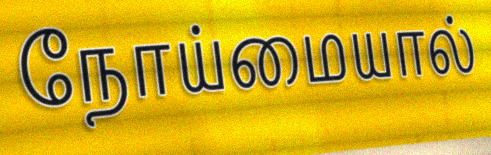
நோய்மையால்